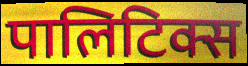
पालिटिक्स